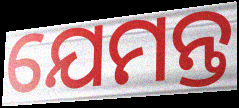
ଯେମନ୍ତ